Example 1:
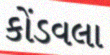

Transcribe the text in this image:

કોંડવલા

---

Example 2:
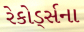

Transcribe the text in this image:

રેકોર્ડ્સના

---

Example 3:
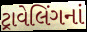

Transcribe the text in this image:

ટ્રાવેલિંગનાં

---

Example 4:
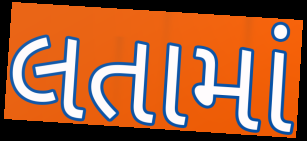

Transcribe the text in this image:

લતામાં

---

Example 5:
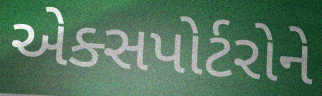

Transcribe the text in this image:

એક્સપોર્ટરોને